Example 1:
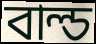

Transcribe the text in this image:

বাল্ড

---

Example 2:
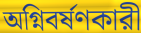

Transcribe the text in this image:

অগ্নিবর্ষণকারী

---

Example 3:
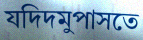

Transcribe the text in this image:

যদিদমুপাসতে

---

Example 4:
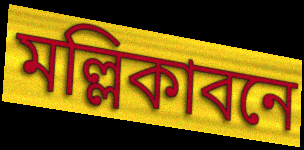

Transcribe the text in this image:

মল্লিকাবনে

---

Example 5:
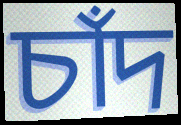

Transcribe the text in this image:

চাঁদ